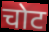
चोट